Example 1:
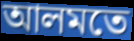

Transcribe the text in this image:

আলমতে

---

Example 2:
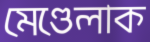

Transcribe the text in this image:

মেণ্ডেলাক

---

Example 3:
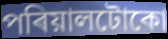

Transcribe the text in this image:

পৰিয়ালটোকো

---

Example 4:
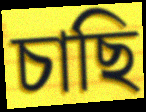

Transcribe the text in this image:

চাছি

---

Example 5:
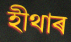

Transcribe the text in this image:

হীথাৰ